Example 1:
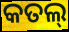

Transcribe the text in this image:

କତଲ୍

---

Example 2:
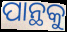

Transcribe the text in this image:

ପାନ୍ଥକୁ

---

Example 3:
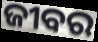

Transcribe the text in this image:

ଜୀବର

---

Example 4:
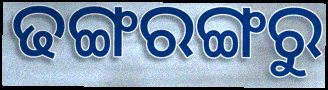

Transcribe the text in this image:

ଢଙ୍ଗରଙ୍ଗରୁ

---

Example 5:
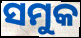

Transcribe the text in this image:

ସମୁକ